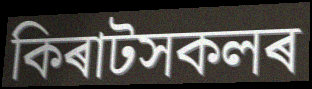
কিৰাটসকলৰ